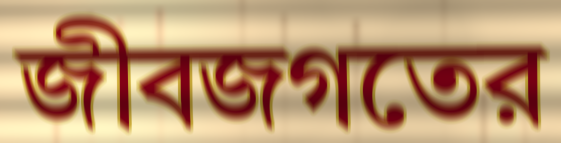
জীবজগতের